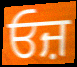
ਓਜ਼